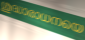
ശുദ്ധാരാധനയെ